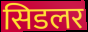
सिडलर